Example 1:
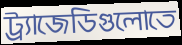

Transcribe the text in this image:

ট্র্যাজেডিগুলোতে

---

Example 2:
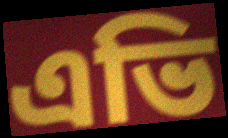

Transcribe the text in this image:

এভি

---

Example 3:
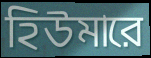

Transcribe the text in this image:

হিউমারে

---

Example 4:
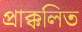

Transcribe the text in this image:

প্রাক্কলিত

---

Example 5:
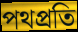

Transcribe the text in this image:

পথপ্রতি